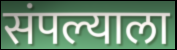
संपल्याला